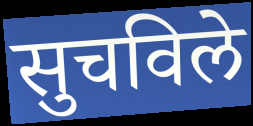
सुचविले